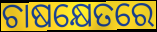
ଚାଷକ୍ଷେତରେ